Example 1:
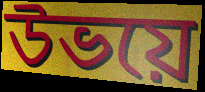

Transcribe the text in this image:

উভয়ে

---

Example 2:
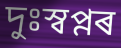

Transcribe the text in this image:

দুঃস্বপ্নৰ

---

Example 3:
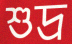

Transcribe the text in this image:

শুদ্ৰ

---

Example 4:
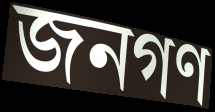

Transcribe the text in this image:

জনগণ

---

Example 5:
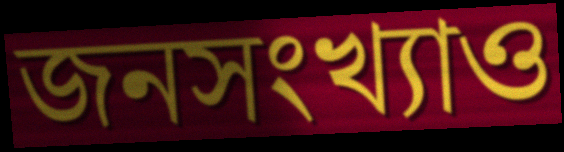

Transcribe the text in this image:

জনসংখ্যাও